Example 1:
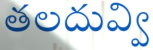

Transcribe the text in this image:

తలదువ్వి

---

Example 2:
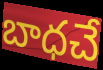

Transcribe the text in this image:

బాధచే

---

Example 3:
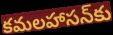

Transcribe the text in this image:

కమలహాసన్‌కు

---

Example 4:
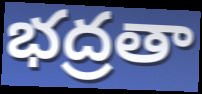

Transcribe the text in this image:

భద్రతా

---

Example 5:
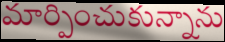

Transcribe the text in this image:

మార్పించుకున్నాను